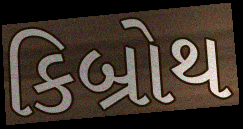
કિબ્રોથ